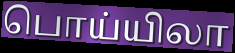
பொய்யிலா